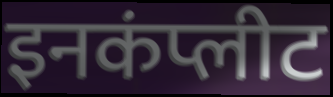
इनकंप्लीट